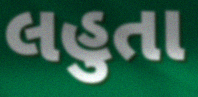
લહુતા